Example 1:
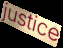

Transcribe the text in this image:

justice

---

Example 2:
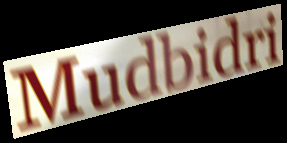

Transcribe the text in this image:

Mudbidri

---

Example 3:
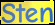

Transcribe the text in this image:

Sten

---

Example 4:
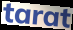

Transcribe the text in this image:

tarat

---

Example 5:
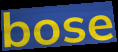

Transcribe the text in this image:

bose